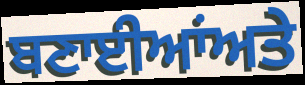
ਬਣਾਈਆਂਅਤੇ